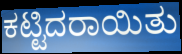
ಕಟ್ಟಿದರಾಯಿತು